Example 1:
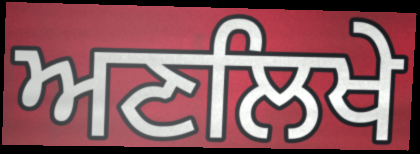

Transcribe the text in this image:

ਅਣਲਿਖੇ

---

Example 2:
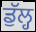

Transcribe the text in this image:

ਡੁੱਲ੍ਹ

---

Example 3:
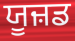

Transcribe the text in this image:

ਯੂਜ਼ਡ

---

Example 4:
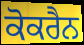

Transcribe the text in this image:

ਕੋਕਰੈਨ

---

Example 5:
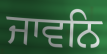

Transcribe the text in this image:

ਜਾਵਨਿ